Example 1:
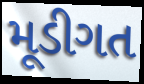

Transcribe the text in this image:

મૂડીગત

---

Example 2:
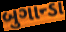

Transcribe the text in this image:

બુગાન્ડા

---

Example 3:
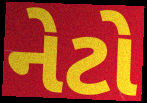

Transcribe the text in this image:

નેટો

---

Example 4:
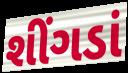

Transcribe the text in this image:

શીંગડાં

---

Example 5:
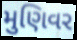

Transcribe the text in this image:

મુણિવર